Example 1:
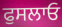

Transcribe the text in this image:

ਫੁਸਲਾਓ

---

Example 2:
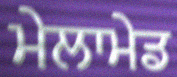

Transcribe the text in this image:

ਮੇਲਾਮੇਡ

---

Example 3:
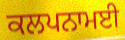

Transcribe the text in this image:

ਕਲਪਨਾਮਈ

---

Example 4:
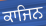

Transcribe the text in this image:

ਕਾਜਿਨ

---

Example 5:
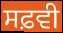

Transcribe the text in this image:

ਸਫ਼ਵੀ